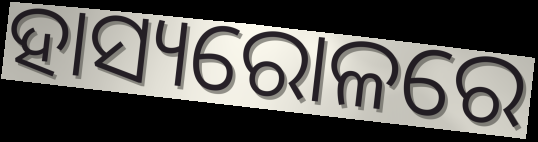
ହାସ୍ୟରୋଳରେ